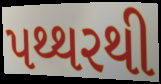
પથ્થરથી